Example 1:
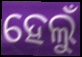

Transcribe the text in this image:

ହେଲୁଁ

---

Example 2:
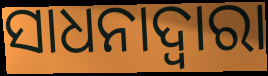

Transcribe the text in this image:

ସାଧନାଦ୍ଵାରା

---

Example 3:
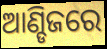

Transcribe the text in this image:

ଆଣ୍ଡିଜରେ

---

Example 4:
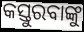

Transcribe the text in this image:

କସ୍ତୁରବାଙ୍କୁ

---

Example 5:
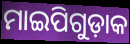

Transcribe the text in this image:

ମାଇପିଗୁଡ଼ାକ